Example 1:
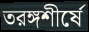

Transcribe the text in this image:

তরঙ্গশীর্ষে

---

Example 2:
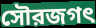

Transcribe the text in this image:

সৌরজগৎ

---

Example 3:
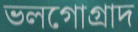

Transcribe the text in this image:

ভলগোগ্রাদ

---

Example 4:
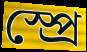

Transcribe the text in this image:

স্প্রে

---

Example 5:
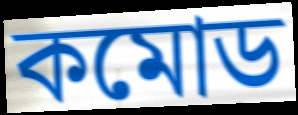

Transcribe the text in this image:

কমোড